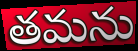
తమను